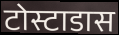
टोस्टाडास